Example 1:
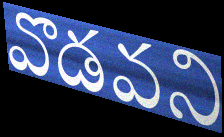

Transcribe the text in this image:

వొడవని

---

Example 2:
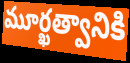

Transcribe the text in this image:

మూర్ఖత్వానికి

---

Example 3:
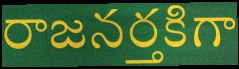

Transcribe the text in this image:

రాజనర్తకిగా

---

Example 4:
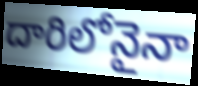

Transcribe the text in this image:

దారిలోనైనా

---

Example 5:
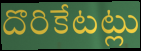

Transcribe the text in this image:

దొరికేటట్లు